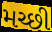
મચ્છી